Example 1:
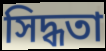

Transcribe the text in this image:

সিদ্ধতা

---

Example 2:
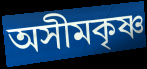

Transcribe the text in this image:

অসীমকৃষ্ণ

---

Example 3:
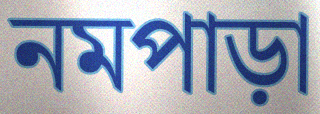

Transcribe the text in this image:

নমপাড়া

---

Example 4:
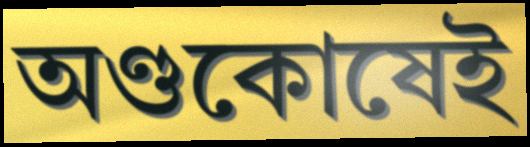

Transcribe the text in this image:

অণ্ডকোষেই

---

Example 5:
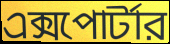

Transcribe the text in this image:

এক্সপোর্টার